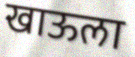
खाऊला